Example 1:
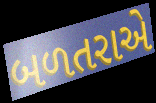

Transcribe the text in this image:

બળતરાએ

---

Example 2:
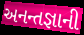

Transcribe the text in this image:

અનન્તજ્ઞાની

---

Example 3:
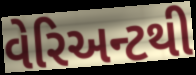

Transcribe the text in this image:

વેરિઅન્ટથી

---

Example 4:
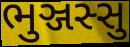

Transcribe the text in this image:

ભુઞ્જસ્સુ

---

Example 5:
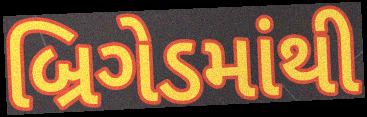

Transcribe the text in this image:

બ્રિગેડમાંથી